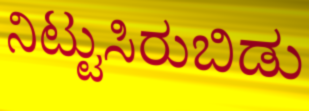
ನಿಟ್ಟುಸಿರುಬಿಡು